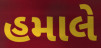
હમાલે